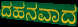
ದಹನವಾದ